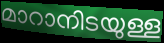
മാറാനിടയുള്ള